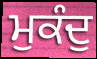
ਮੁਕੰਦੁ